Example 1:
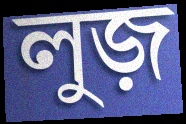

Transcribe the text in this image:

লুজ়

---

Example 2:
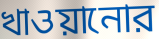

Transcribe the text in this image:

খাওয়ানোর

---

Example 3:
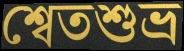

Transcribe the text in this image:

শ্বেতশুভ্র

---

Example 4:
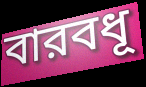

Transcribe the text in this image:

বারবধূ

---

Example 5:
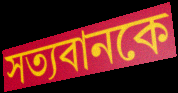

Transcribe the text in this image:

সত্যবানকে